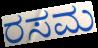
ರಸಮ